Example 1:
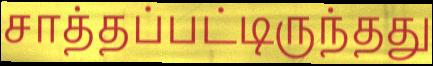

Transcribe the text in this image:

சாத்தப்பட்டிருந்தது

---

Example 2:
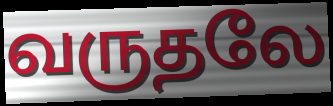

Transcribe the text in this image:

வருதலே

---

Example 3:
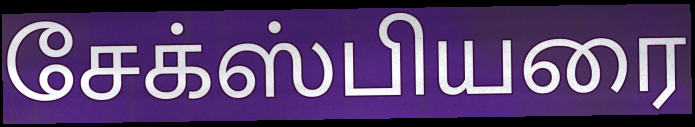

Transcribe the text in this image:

சேக்ஸ்பியரை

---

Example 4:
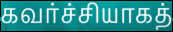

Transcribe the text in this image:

கவர்ச்சியாகத்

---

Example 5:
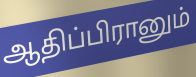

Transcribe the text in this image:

ஆதிப்பிரானும்